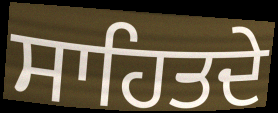
ਸਾਹਿਤਦੇ